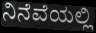
ನಿನೆವೆಯಲ್ಲಿ